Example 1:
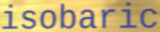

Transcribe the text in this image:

isobaric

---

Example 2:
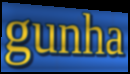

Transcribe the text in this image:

gunha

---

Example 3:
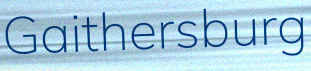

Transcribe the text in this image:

Gaithersburg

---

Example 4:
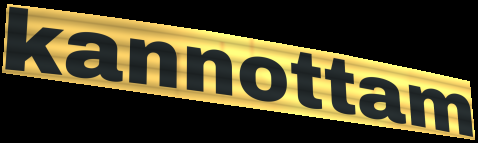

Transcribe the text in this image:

kannottam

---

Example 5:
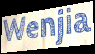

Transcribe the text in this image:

Wenjia